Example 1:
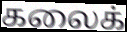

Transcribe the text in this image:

கலைக்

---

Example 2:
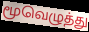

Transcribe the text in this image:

மூவெழுத்து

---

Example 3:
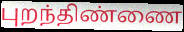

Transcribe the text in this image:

புறந்திண்ணை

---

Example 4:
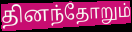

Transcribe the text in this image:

தினந்தோறும்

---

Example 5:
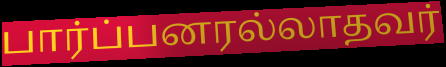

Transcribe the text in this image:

பார்ப்பனரல்லாதவர்